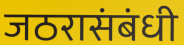
जठरासंबंधी